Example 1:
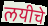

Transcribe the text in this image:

लयीचे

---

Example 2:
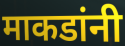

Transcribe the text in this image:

माकडांनी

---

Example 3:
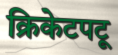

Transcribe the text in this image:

क्रिकेटपटू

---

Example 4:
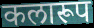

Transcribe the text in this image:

कलारूप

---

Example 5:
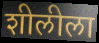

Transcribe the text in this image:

शीलीला